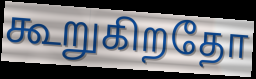
கூறுகிறதோ